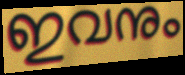
ഇവനും